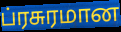
ப்ரசுரமான